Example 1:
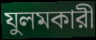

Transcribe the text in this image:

যুলমকারী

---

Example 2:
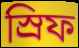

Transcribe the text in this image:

স্রিফ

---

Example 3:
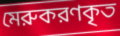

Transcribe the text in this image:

মেরুকরণকৃত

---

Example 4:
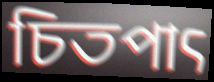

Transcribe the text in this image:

চিতপাৎ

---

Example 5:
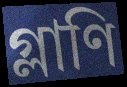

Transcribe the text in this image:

গ্লাণি